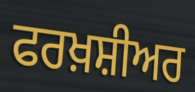
ਫਰਖ਼ਸ਼ੀਅਰ